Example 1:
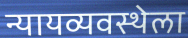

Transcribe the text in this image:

न्यायव्यवस्थेला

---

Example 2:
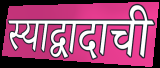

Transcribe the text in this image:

स्याद्वादाची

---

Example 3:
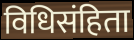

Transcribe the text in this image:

विधिसंहिता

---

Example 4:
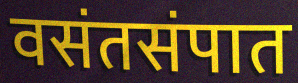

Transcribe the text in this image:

वसंतसंपात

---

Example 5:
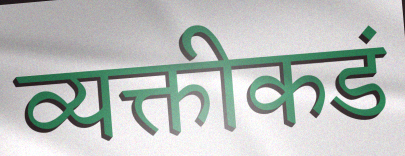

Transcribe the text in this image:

व्यक्तीकडं